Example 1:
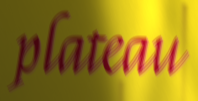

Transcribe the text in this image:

plateau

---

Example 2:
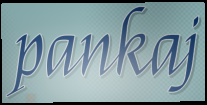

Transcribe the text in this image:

pankaj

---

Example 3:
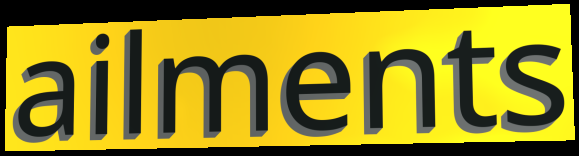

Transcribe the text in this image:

ailments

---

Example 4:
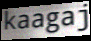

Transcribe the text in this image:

kaagaj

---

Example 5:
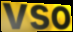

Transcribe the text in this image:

vso